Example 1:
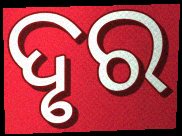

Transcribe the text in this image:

ଦୃର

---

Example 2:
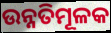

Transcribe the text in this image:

ଉନ୍ନତିମୂଳକ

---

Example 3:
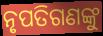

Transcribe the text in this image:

ନୃପତିଗଣଙ୍କୁ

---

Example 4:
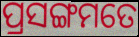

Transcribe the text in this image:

ପ୍ରସଙ୍ଗମତେ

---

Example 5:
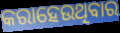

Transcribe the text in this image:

କରାହେଉଥିବାର